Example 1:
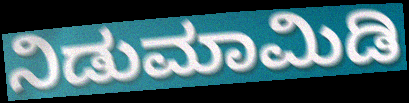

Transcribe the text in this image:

ನಿಡುಮಾಮಿಡಿ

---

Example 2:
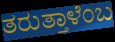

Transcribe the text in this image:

ತರುತ್ತಾಳೆಂಬ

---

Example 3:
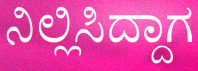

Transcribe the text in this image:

ನಿಲ್ಲಿಸಿದ್ದಾಗ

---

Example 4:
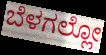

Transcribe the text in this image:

ಬೆಳಗಲ್ಲೋ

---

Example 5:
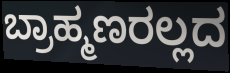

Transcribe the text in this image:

ಬ್ರಾಹ್ಮಣರಲ್ಲದ